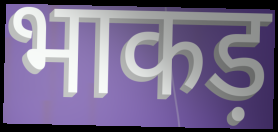
भाकड़